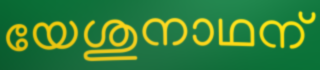
യേശുനാഥന്